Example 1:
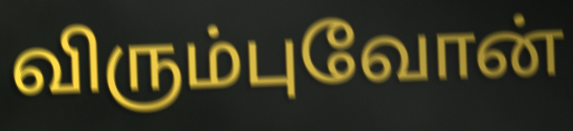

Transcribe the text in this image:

விரும்புவோன்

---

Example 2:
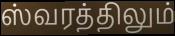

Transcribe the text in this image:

ஸ்வரத்திலும்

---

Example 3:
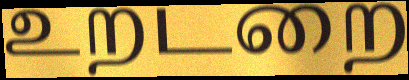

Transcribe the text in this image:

உறடறை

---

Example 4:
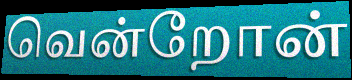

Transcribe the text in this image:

வென்றோன்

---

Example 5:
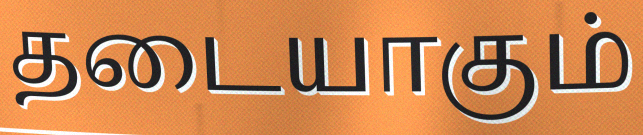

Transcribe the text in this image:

தடையாகும்